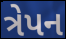
ત્રેપન